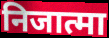
निजात्मा